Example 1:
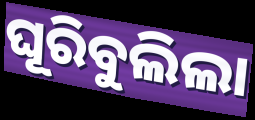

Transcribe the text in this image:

ଘୂରିବୁଲିଲା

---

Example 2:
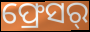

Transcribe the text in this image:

ଫ୍ରେସର୍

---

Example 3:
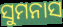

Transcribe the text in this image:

ସୁମନାସ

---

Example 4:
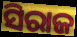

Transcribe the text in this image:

ସିରାଜ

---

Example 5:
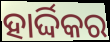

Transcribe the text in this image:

ହାର୍ଦ୍ଦିକର